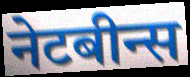
नेटबीन्स